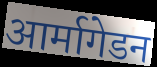
आर्मागेडन